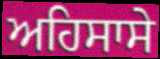
ਅਹਿਸਾਸੇ